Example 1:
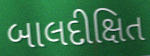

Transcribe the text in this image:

બાલદીક્ષિત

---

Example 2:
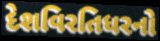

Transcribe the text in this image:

દેશવિરતિધરનો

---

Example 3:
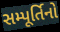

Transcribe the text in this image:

સમ્પૂર્તિનો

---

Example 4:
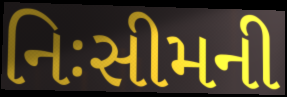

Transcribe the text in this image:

નિઃસીમની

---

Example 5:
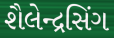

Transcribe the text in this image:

શૈલેન્દ્રસિંગ